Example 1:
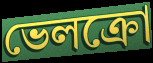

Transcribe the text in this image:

ভেলক্রো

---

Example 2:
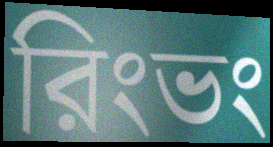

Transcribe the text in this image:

রিংভং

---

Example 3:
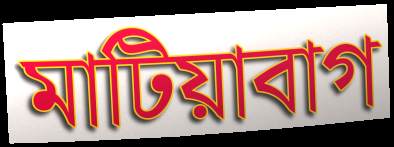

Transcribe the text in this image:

মাটিয়াবাগ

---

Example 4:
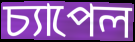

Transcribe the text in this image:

চ্যাপেল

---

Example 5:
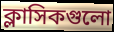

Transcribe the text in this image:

ক্লাসিকগুলো